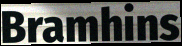
Bramhins